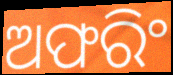
ଅଫରିଂ